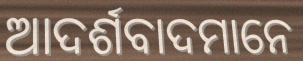
ଆଦର୍ଶବାଦମାନେ